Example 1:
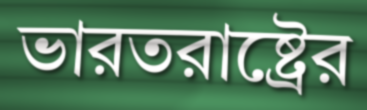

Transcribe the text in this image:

ভারতরাষ্ট্রের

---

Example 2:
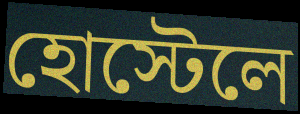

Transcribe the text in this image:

হোস্টেলে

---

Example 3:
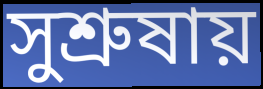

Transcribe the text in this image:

সুশ্রুষায়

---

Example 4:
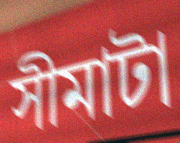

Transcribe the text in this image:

সীমাটা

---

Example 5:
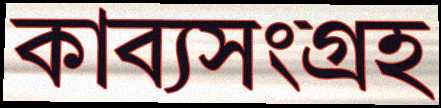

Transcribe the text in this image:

কাব্যসংগ্রহ